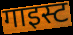
गाइस्ट